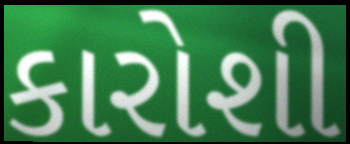
કારોશી